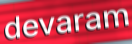
devaram